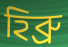
হিব্রু